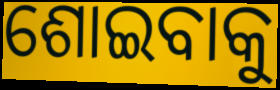
ଶୋଇବାକୁ